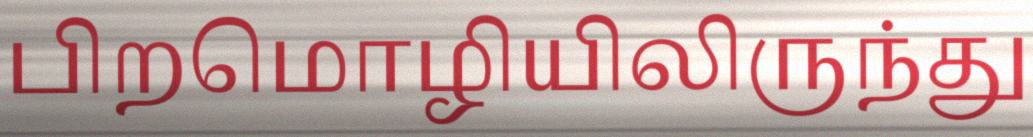
பிறமொழியிலிருந்து